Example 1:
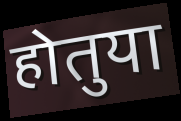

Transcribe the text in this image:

होतुया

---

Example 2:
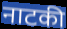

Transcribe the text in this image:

नाटकी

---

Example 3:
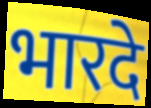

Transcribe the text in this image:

भारदे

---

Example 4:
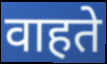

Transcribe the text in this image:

वाहते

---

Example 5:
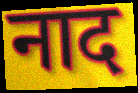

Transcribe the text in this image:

नाद